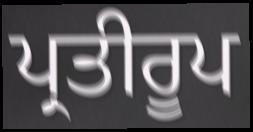
ਪ੍ਰਤੀਰੂਪ